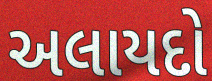
અલાયદો